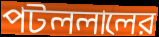
পটললালের